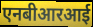
एनबीआरआई